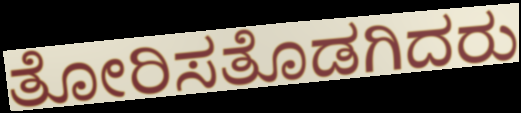
ತೋರಿಸತೊಡಗಿದರು